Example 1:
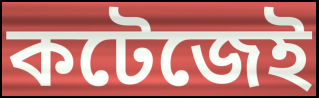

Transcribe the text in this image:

কটেজেই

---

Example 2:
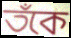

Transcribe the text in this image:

তঁকে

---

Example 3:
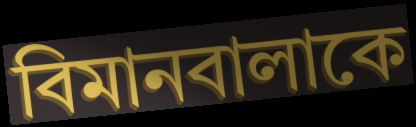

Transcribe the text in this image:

বিমানবালাকে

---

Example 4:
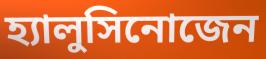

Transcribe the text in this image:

হ্যালুসিনোজেন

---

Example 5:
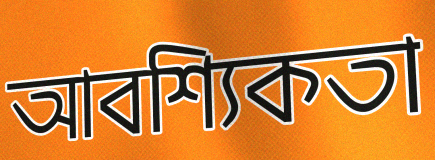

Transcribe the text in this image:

আবশ্যিকতা